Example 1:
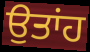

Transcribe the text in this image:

ਉਤਾਂਹ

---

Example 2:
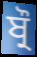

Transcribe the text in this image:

ਬ੍ਰੌ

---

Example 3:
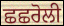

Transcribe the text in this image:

ਛਛਰੋਲੀ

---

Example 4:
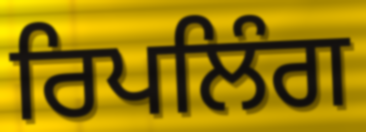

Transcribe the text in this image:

ਰਿਪਲਿੰਗ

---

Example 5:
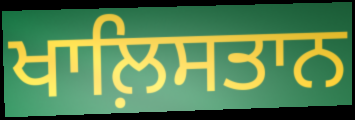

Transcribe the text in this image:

ਖਾਲ਼ਿਸਤਾਨ